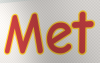
Met